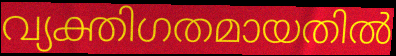
വ്യക്തിഗതമായതിൽ